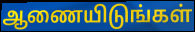
ஆணையிடுங்கள்